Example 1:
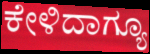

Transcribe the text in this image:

ಕೇಳಿದಾಗ್ಯೂ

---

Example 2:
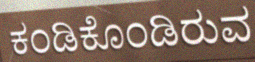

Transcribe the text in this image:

ಕಂಡಿಕೊಂಡಿರುವ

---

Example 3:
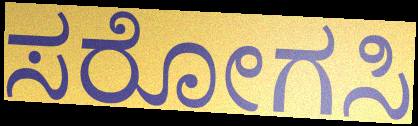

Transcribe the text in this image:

ಸರೋಗಸಿ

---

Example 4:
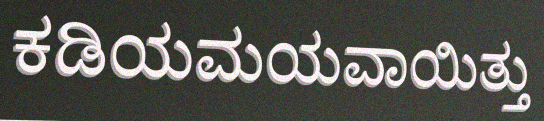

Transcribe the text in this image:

ಕಡಿಯಮಯವಾಯಿತ್ತು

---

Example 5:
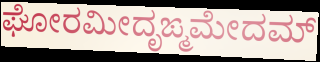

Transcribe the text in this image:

ಘೋರಮೀದೃಙ್ಮಮೇದಮ್